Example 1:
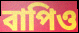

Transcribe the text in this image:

বাপিও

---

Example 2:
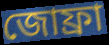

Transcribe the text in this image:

জোফ্রা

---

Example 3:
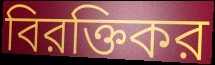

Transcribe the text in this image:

বিরক্তিকর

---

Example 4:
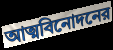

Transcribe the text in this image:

আত্মবিনোদনের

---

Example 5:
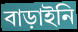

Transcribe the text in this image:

বাড়াইনি